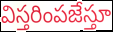
విస్తరింపజేస్తూ